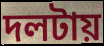
দলটায়